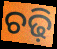
ଚଢ଼ି